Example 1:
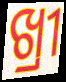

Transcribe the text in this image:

ଖ୍ରୀ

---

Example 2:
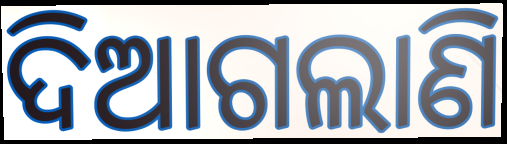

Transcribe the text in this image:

ଦିଆଗଲାଣି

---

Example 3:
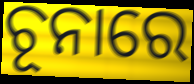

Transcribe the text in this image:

ଚୂନାରେ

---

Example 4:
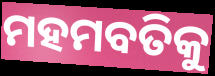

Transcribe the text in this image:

ମହମବତିକୁ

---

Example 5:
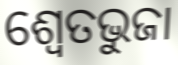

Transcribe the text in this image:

ଶ୍ଵେତଭୁଜା